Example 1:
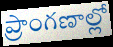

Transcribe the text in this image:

ప్రాంగణాల్లో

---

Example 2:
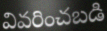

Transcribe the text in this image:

వివరించబడి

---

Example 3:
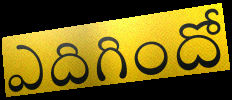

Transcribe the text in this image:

ఎదిగిందో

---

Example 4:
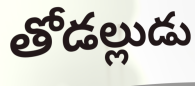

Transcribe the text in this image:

తోడల్లుడు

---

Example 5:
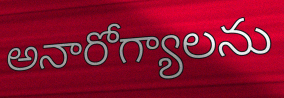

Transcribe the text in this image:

అనారోగ్యాలను